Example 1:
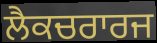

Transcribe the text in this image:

ਲੈਕਚਰਾਰਜ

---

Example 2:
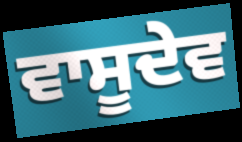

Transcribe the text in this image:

ਵਾਸੂਦੇਵ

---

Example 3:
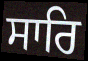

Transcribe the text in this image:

ਸਾਰਿ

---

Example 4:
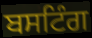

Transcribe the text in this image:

ਬਸਟਿੰਗ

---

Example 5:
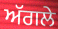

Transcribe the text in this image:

ਅੱਗਲੇ